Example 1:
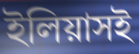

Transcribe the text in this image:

ইলিয়াসই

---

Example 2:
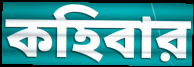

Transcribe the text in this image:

কহিবার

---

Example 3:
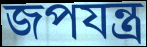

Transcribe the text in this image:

জপযন্ত্র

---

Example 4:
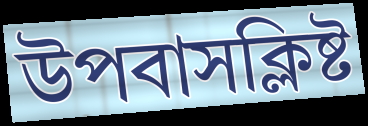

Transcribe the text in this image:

উপবাসক্লিষ্ট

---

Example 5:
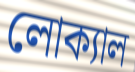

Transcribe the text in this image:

লোক্যাল